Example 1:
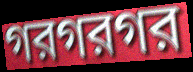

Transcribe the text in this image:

গরগরগর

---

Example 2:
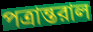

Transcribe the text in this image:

পত্রান্তরাল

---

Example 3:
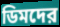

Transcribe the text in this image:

ডিমদের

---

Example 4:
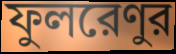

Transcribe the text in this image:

ফুলরেণুর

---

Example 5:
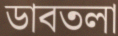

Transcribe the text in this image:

ডাবতলা